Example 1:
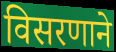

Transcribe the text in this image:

विसरणाने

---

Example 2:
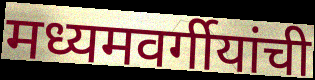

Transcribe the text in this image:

मध्यमवर्गीयांची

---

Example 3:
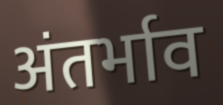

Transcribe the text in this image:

अंतर्भाव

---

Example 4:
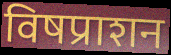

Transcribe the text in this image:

विषप्राशन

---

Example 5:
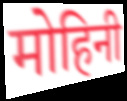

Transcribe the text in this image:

मोहिनी